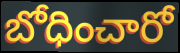
బోధించారో